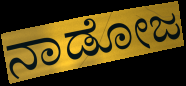
ನಾಡೋಜ